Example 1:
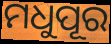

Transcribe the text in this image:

ମଧୁପୂର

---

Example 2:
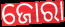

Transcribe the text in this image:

ଜୋରା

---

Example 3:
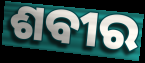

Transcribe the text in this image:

ଶବୀର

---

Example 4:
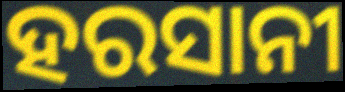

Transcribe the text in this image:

ହରସାନୀ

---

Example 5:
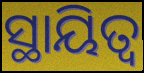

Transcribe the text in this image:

ସ୍ଥାୟିତ୍ୱ